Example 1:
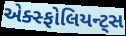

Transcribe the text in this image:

એક્સ્ફોલિયન્ટ્સ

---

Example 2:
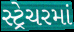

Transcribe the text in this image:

સ્ટ્રેચરમાં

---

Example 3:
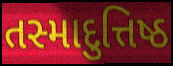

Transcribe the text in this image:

તસ્માદુત્તિષ્ઠ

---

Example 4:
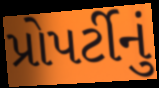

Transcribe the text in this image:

પ્રોપર્ટીનું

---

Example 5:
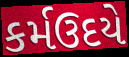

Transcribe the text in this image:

કર્મઉદયે